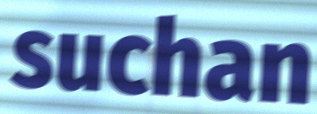
suchan